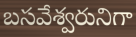
బసవేశ్వరునిగా